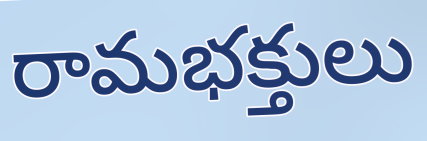
రామభక్తులు